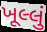
ખૂલ્લું